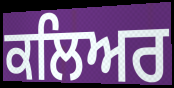
ਕਲਿਅਰ